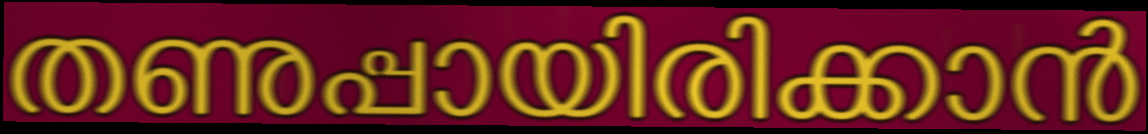
തണുപ്പായിരിക്കാൻ